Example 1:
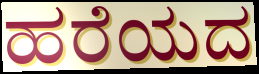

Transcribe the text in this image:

ಹರೆಯದ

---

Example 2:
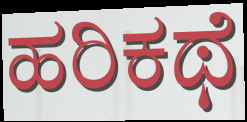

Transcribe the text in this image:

ಹರಿಕಥೆ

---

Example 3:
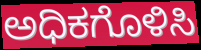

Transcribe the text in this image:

ಅಧಿಕಗೊಳಿಸಿ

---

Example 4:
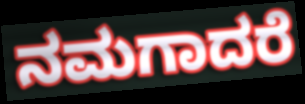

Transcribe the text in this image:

ನಮಗಾದರೆ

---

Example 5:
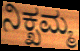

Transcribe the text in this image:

ನಿಕ್ಖಮ್ಮ